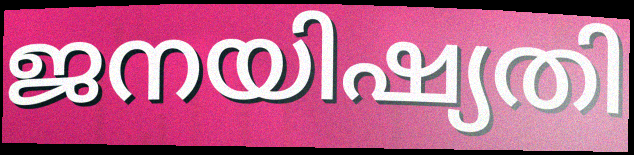
ജനയിഷ്യതി